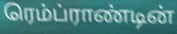
ரெம்ப்ராண்டின்